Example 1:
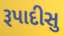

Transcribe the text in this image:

રૂપાદીસુ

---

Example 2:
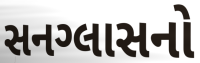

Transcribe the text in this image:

સનગ્લાસનો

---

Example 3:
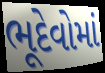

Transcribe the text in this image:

ભૂદેવોમાં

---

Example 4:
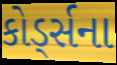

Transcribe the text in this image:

કોર્ડ્સના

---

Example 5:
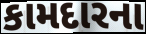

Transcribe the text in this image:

કામદારના